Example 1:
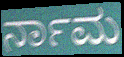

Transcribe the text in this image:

ರ್ನಾಮ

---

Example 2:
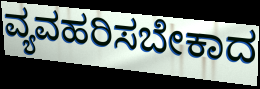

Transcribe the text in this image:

ವ್ಯವಹರಿಸಬೇಕಾದ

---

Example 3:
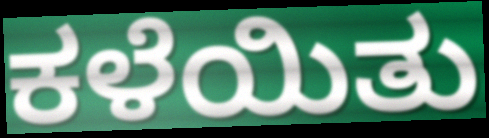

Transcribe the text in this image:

ಕಳೆಯಿತು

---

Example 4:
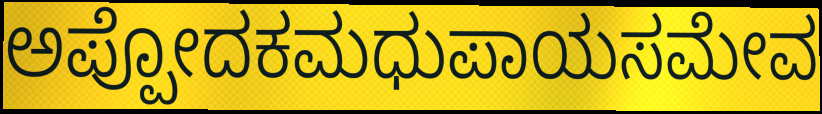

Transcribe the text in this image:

ಅಪ್ಪೋದಕಮಧುಪಾಯಸಮೇವ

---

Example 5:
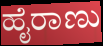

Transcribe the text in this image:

ಹೈರಾಣು